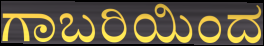
ಗಾಬರಿಯಿಂದ